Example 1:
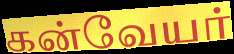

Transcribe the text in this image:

கன்வேயர்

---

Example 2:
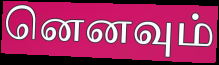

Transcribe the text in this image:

னெனவும்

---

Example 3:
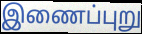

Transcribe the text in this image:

இணைப்புறு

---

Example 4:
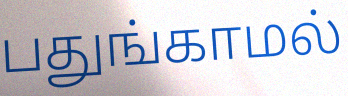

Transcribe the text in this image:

பதுங்காமல்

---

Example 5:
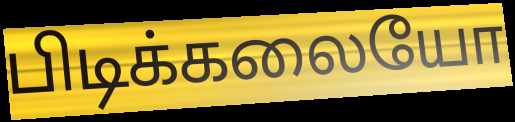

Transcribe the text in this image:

பிடிக்கலையோ